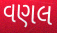
વણલ